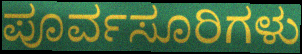
ಪೂರ್ವಸೂರಿಗಳು